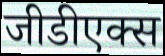
जीडीएक्स